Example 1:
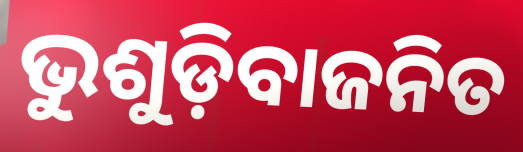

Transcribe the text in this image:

ଭୁଶୁଡ଼ିବାଜନିତ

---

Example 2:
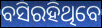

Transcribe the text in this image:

ବସିରହିଥିବେ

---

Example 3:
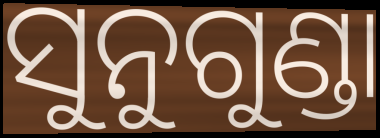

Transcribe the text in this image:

ସୁନୁଗୁଣ୍ଡା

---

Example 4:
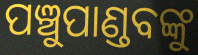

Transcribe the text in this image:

ପଞ୍ଚୁପାଣ୍ଡବଙ୍କୁ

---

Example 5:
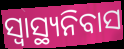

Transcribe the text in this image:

ସ୍ୱାସ୍ଥ୍ୟନିବାସ